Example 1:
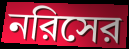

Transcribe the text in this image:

নরিসের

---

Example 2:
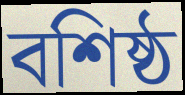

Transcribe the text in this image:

বশিষ্ঠ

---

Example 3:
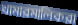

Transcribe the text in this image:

খামারমালিকরা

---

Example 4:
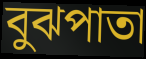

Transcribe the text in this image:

বুঝপাতা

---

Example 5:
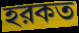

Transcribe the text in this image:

হরকত